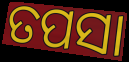
ତପସା